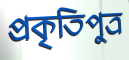
প্রকৃতিপুত্র